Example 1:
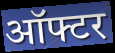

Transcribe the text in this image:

ऑफ्टर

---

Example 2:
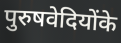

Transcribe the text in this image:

पुरुषवेदियोंके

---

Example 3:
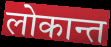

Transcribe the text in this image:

लोकान्त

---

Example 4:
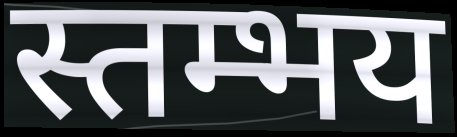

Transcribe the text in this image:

स्तम्भय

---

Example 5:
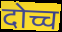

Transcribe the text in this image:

दोच्च